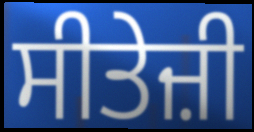
ਸੀਤੇਜ਼ੀ